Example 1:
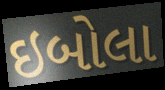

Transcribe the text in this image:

ઇબોલા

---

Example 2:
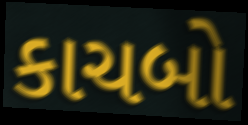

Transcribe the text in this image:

કાચબો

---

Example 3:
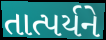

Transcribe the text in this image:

તાત્પર્યને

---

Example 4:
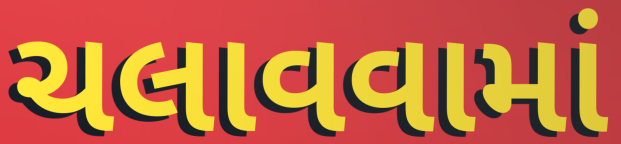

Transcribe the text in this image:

ચલાવવામાં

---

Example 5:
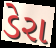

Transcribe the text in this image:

ડેરા